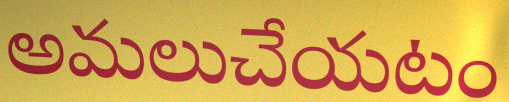
అమలుచేయటం